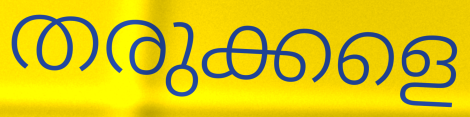
തരുക്കളെ